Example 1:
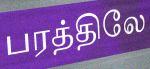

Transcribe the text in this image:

பரத்திலே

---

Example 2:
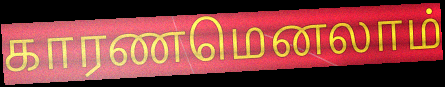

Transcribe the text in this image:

காரணமெனலாம்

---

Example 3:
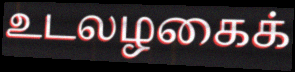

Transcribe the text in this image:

உடலழகைக்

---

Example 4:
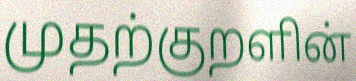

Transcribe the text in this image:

முதற்குறளின்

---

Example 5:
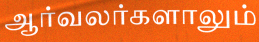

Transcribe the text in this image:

ஆர்வலர்களாலும்